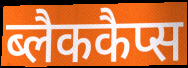
ब्लैककैप्स